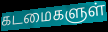
கடமைகளுள்